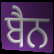
ਬੈਨ